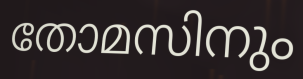
തോമസിനും